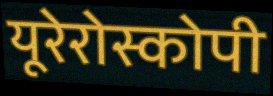
यूरेरोस्कोपी